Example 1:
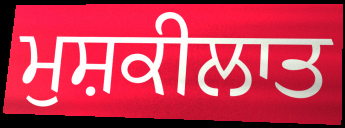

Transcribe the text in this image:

ਮੁਸ਼ਕੀਲਾਤ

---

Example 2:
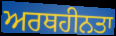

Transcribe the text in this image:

ਅਰਥਹੀਨਤਾ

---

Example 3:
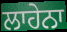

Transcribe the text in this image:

ਲਾਹੇਨਾ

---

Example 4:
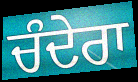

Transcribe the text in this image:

ਚੰਦੇਰਾ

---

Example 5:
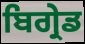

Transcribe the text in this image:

ਬਿਗ੍ਰੇਡ